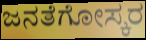
ಜನತೆಗೋಸ್ಕರ